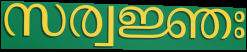
സര്വജ്ഞഃ